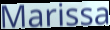
Marissa